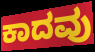
ಕಾದವು